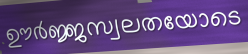
ഊർജ്ജസ്വലതയോടെ